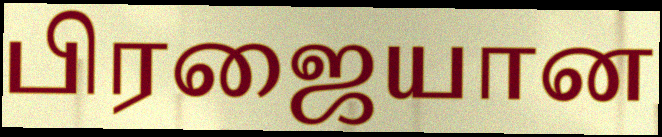
பிரஜையான